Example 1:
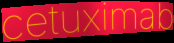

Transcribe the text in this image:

cetuximab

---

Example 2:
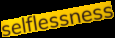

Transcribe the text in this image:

selflessness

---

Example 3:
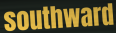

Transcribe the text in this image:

southward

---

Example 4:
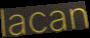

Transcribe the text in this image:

lacan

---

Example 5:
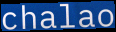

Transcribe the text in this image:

chalao